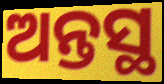
ଅନ୍ତସ୍ଥ